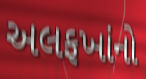
અલફખાંનો